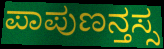
ಪಾಪುಣನ್ತಸ್ಸ